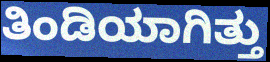
ತಿಂಡಿಯಾಗಿತ್ತು